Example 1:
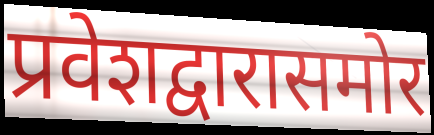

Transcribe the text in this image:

प्रवेशद्वारासमोर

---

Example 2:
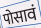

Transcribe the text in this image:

पोसावं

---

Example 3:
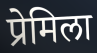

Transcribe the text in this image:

प्रेमिला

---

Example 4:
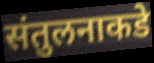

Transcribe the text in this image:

संतुलनाकडे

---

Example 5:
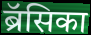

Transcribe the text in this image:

ब्रॅसिका